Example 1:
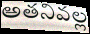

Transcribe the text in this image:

అతనివల్ల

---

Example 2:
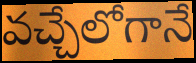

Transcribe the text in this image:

వచ్చేలోగానే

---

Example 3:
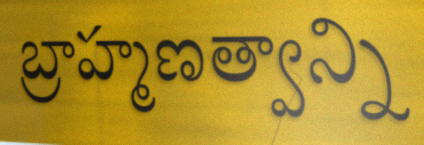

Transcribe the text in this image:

బ్రాహ్మణత్వాన్ని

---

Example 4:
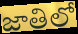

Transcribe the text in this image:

జాతిలో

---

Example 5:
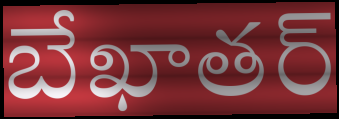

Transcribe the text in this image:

బేఖాతర్